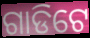
ଗାଡିଟେ